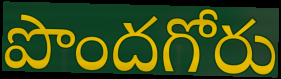
పొందగోరు